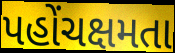
પહોંચક્ષમતા